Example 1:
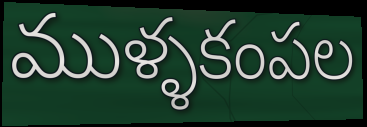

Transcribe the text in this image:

ముళ్ళకంపల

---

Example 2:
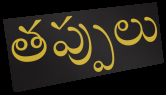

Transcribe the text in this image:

తప్పులు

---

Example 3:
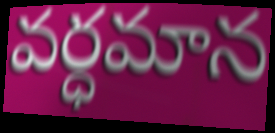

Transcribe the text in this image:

వర్ధమాన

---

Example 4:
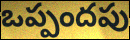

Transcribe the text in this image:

ఒప్పందపు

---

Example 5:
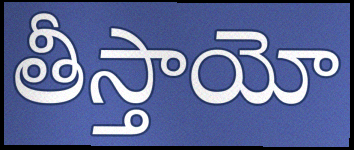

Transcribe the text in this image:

తీస్తాయో